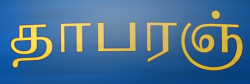
தாபரஞ்